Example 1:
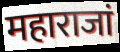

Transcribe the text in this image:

महाराजां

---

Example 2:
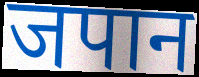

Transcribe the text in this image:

जपान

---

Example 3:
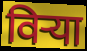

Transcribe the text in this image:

विऱ्या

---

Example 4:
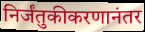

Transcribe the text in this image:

निर्जंतुकीकरणानंतर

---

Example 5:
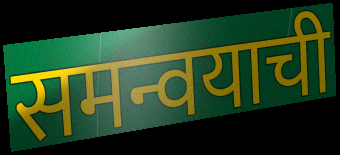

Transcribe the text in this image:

समन्वयाची